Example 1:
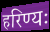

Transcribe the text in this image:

हरिण्यः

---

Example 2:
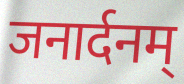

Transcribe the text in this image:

जनार्दनम्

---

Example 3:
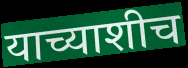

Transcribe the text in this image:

याच्याशीच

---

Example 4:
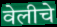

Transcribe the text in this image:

वेलीचे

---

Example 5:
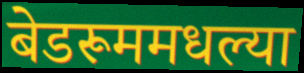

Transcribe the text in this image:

बेडरूममधल्या